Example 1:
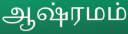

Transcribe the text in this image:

ஆஷ்ரமம்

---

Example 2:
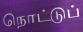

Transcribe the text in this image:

நொட்டுப்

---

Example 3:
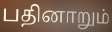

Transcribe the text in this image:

பதினாறும்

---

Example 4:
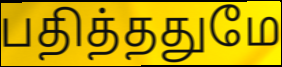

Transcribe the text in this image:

பதித்ததுமே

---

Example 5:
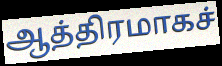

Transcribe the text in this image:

ஆத்திரமாகச்